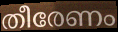
തീരേണം